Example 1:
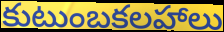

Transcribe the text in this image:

కుటుంబకలహాలు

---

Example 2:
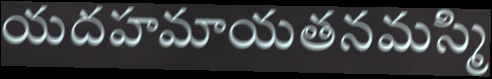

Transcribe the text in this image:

యదహమాయతనమస్మి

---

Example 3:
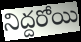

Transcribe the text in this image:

నిద్దరోయి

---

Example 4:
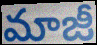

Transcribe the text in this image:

మాజీ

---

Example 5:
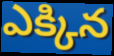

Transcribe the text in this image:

ఎక్కిన